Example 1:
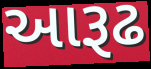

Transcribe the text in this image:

આરૂઢ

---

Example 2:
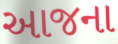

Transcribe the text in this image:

આજના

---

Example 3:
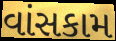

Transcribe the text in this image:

વાંસકામ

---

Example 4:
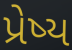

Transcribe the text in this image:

પ્રેષ્ય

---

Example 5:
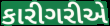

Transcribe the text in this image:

કારીગરીએ